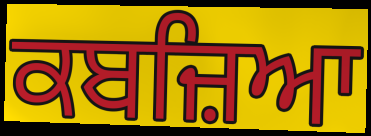
ਕਬਜ਼ਿਆ